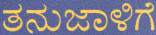
ತನುಜಾಳಿಗೆ